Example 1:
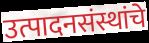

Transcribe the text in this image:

उत्पादनसंस्थांचे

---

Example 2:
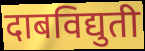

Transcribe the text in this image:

दाबविद्युती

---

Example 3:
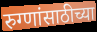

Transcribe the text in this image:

रुग्णांसाठीच्या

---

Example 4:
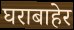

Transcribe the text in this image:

घराबाहेर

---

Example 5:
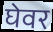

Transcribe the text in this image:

घेवर